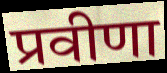
प्रवीणा